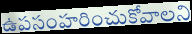
ఉపసంహరించుకోవాలని